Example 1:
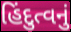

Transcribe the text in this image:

હિંદુત્વનું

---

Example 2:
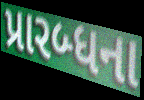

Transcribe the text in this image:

પ્રારબ્ધના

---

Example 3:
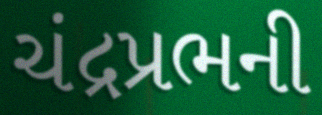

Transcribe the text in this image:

ચંદ્રપ્રભની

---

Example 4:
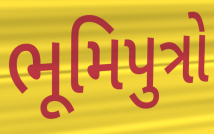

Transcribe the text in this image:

ભૂમિપુત્રો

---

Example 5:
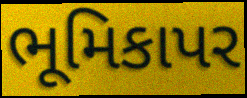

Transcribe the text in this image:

ભૂમિકાપર